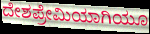
ದೇಶಪ್ರೇಮಿಯಾಗಿಯೂ